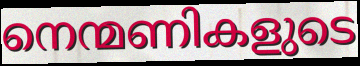
നെന്മണികളുടെ